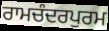
ਰਾਮਚੰਦਰਪੁਰਮ